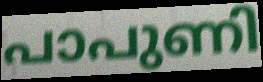
പാപുണി